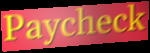
Paycheck